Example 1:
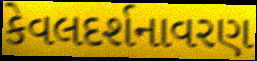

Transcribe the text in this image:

કેવલદર્શનાવરણ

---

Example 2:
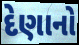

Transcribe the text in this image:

દેણાનો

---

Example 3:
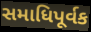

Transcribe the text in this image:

સમાધિપૂર્વક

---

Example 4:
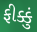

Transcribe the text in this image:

ફીક્કું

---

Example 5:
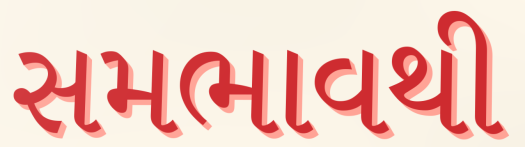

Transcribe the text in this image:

સમભાવથી